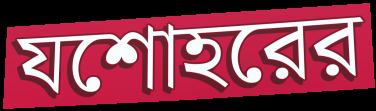
যশোহরের